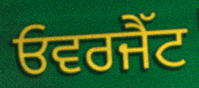
ਓਵਰਜੈੱਟ